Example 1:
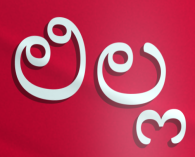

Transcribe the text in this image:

ಲಿಲ್ಲ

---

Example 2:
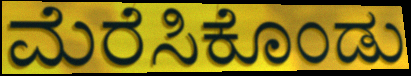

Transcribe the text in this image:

ಮೆರೆಸಿಕೊಂಡು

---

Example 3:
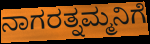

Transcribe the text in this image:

ನಾಗರತ್ನಮ್ಮನಿಗೆ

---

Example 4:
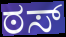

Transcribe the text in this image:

ಠಸ್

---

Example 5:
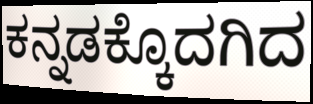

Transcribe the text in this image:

ಕನ್ನಡಕ್ಕೊದಗಿದ